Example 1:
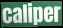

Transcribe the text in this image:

caliper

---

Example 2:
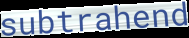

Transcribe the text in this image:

subtrahend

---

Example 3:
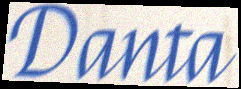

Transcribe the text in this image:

Danta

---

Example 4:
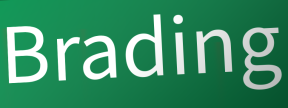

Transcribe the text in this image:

Brading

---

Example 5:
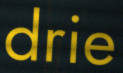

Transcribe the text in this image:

drie